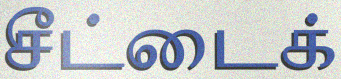
சீட்டைக்